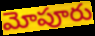
మోపూరు